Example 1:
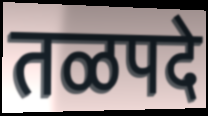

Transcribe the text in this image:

तळपदे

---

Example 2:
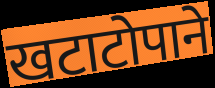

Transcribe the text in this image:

खटाटोपाने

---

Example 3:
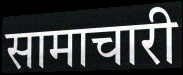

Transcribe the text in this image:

सामाचारी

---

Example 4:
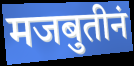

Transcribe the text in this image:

मजबुतीनं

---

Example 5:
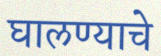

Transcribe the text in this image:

घालण्याचे